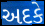
અદકે